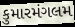
કુમારમંગલમ